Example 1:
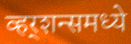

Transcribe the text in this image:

व्हर्शन्समध्ये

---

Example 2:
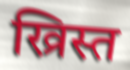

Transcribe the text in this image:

ख्रिस्त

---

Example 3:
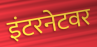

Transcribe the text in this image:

इंटरनेटवर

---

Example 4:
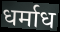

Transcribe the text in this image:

धर्माध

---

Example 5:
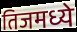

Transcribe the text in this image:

तिजमध्ये